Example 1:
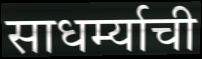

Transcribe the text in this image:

साधर्म्याची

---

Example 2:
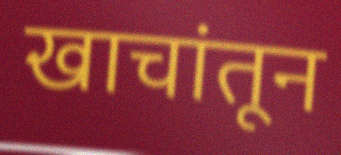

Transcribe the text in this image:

खाचांतून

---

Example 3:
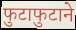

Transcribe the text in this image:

फुटाफुटाने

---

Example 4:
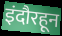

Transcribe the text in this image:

इंदौरहून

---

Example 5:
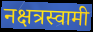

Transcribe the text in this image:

नक्षत्रस्वामी